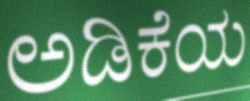
ಅಡಿಕೆಯ